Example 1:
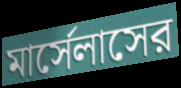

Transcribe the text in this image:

মার্সেলাসের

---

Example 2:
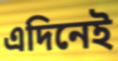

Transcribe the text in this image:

এদিনেই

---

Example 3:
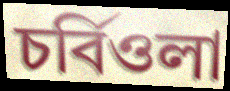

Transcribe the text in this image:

চর্বিওলা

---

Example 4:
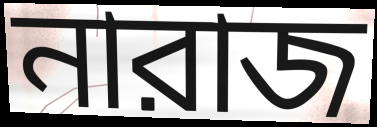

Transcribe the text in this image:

নারাজ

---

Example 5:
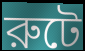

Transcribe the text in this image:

রুটে